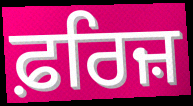
ਫ਼ਰਿਜ਼